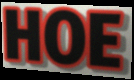
HOE